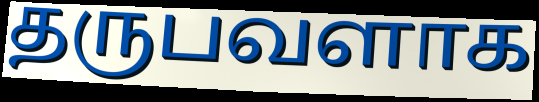
தருபவளாக